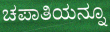
ಚಪಾತಿಯನ್ನೂ